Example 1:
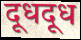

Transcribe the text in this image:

दूधदूध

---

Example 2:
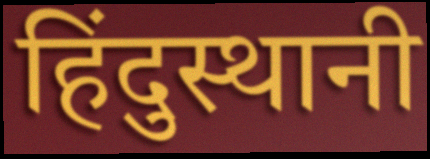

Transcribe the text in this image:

हिंदुस्थानी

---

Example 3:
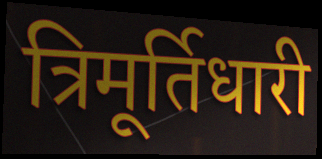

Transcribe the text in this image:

त्रिमूर्तिधारी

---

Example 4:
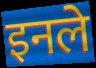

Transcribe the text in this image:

इनले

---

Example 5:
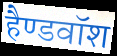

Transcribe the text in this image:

हैण्डवॉश